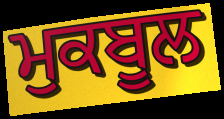
ਮੁਕਬੂਲ